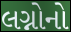
લગ્નોનો